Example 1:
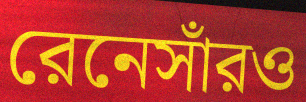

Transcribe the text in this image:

রেনেসাঁরও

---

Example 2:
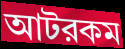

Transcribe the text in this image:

আটরকম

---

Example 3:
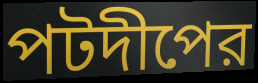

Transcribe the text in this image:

পটদীপের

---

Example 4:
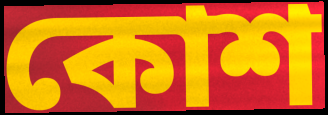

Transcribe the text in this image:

কোশ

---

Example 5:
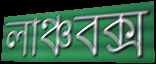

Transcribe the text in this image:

লাঞ্চবক্স